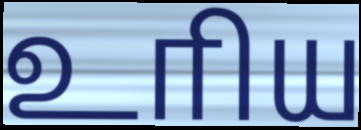
உரிய